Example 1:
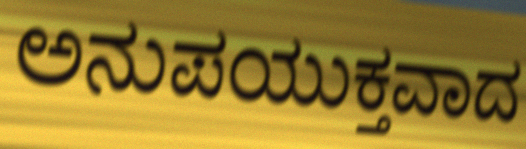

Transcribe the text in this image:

ಅನುಪಯುಕ್ತವಾದ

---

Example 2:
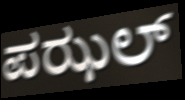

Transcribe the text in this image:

ಪಝಲ್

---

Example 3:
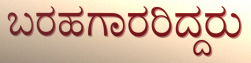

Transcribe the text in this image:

ಬರಹಗಾರರಿದ್ದರು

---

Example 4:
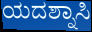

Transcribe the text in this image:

ಯದಶ್ನಾಸಿ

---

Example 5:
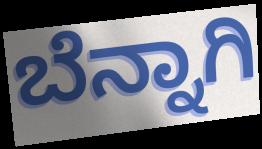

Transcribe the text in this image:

ಬೆನ್ನಾಗಿ